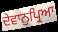
ਦੇਵਾਨੁਪ੍ਰਿਆ